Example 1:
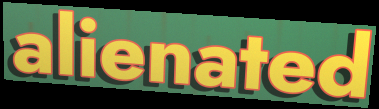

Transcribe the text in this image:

alienated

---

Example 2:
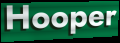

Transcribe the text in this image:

Hooper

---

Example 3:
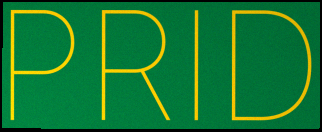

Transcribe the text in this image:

PRID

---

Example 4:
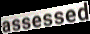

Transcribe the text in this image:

assessed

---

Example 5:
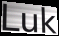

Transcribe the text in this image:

Luk